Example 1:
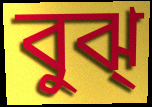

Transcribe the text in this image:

বুঝ্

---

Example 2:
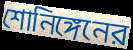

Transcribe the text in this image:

শোনিঙ্গেনের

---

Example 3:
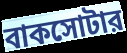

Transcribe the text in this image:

বাকসোটার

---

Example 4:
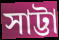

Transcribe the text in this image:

সাট্টা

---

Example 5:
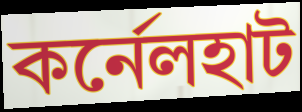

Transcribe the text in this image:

কর্নেলহাট